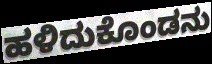
ಹಳಿದುಕೊಂಡನು